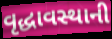
વૃદ્ધાવસ્થાની